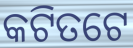
କଟିତଟେ